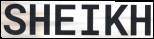
SHEIKH